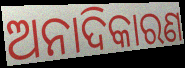
ଅନାଦିକାରଣ